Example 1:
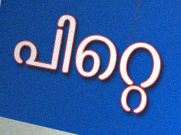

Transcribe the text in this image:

പിറ്റെ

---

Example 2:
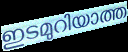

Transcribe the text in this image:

ഇടമുറിയാത്ത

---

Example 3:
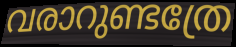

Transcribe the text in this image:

വരാറുണ്ടത്രേ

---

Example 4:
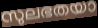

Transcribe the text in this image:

സുലഭതയാ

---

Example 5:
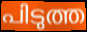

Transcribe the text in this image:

പിടുത്ത